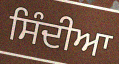
ਸਿੰਦੀਆ